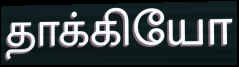
தாக்கியோ